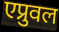
एप्रुवल